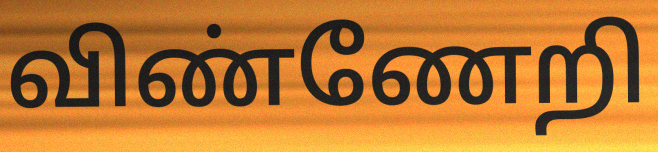
விண்ணேறி